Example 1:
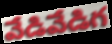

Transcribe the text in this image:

వేడివేడిగ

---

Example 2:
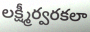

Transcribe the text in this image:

లక్ష్మీర్వరకలా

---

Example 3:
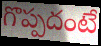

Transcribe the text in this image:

గొప్పదంటే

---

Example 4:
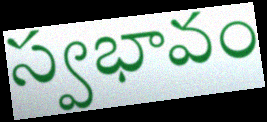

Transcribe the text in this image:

స్వభావం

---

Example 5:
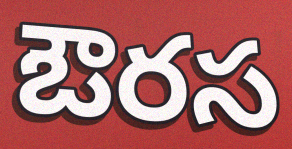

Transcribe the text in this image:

ఔరస